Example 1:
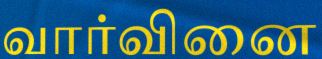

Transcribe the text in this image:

வார்வினை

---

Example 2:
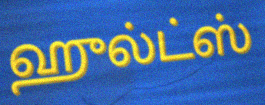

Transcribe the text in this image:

ஹுல்ட்ஸ்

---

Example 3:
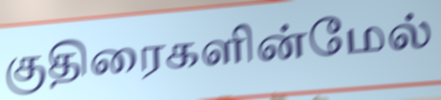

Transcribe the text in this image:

குதிரைகளின்மேல்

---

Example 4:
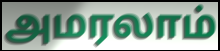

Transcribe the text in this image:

அமரலாம்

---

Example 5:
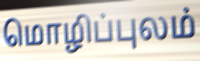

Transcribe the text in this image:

மொழிப்புலம்